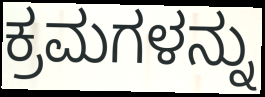
ಕ್ರಮಗಳನ್ನು